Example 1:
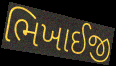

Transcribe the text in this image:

ભિખાઈજી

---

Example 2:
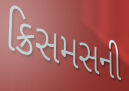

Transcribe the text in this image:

ક્રિસમસની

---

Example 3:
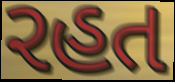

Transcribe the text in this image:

રહત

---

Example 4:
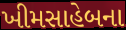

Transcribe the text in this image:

ખીમસાહેબના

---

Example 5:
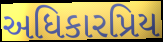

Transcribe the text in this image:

અધિકારપ્રિય